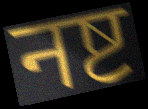
नष्ट